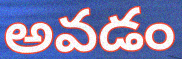
అవడం